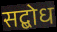
सद्बोध